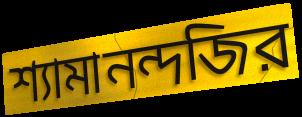
শ্যামানন্দজির